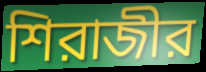
শিরাজীর